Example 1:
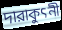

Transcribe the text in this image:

দারাকুৎনী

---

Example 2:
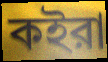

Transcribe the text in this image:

কইরা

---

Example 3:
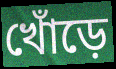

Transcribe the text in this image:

খোঁড়ে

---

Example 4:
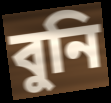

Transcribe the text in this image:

বুনি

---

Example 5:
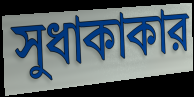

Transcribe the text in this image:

সুধাকাকার